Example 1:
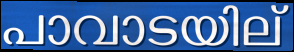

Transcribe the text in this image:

പാവാടയില്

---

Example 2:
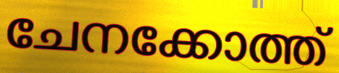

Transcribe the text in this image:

ചേനക്കോത്ത്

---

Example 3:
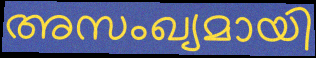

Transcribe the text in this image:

അസംഖ്യമായി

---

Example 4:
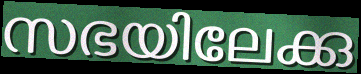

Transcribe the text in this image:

സഭയിലേക്കു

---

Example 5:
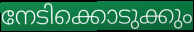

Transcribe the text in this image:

നേടിക്കൊടുക്കും